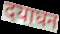
दयाघन